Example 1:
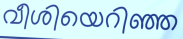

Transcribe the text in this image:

വീശിയെറിഞ്ഞ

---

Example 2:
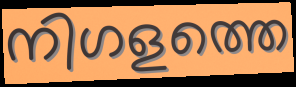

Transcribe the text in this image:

നിഗളത്തെ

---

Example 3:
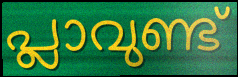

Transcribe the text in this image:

പ്ലാവുണ്ട്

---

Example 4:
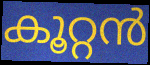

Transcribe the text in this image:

കൂറ്റൻ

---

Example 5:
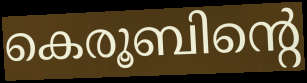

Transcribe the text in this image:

കെരൂബിന്റെ